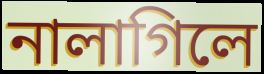
নালাগিলে